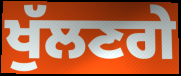
ਖੁੱਲਣਗੇ